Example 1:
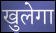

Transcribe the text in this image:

खुलेगा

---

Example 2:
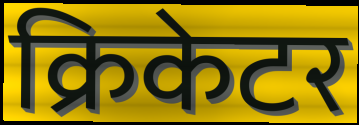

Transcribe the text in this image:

क्रिकेटर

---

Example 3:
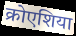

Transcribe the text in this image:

क्रोएशिया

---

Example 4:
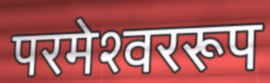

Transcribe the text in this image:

परमेश्वररूप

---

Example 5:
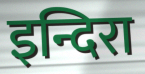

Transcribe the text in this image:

इन्दिरा